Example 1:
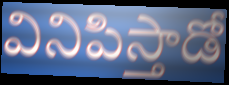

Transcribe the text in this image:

వినిపిస్తాడో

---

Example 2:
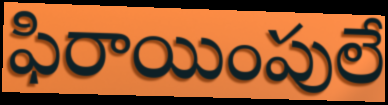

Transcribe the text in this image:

ఫిరాయింపులే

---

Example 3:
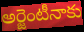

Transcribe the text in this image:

అర్జెంటీనాకు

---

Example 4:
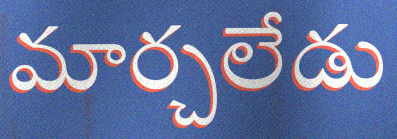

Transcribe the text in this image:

మార్చలేడు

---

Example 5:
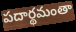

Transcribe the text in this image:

పదార్థమంతా